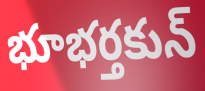
భూభర్తకున్